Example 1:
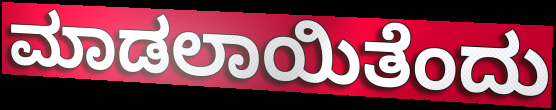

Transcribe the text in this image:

ಮಾಡಲಾಯಿತೆಂದು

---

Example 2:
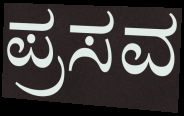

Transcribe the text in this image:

ಪ್ರಸವ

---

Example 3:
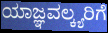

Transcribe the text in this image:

ಯಾಜ್ಞವಲ್ಕ್ಯರಿಗೆ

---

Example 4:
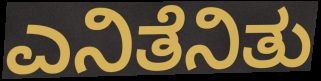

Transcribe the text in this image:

ಎನಿತೆನಿತು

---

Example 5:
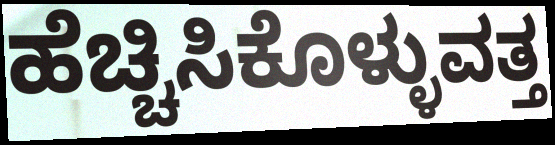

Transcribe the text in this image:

ಹೆಚ್ಚಿಸಿಕೊಳ್ಳುವತ್ತ